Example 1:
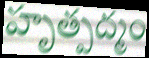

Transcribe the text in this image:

హృత్పద్మం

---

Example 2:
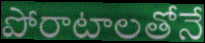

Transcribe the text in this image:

పోరాటాలతోనే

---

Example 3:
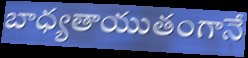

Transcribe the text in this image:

బాధ్యతాయుతంగానే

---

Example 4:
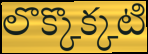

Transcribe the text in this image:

లొక్కొక్కటి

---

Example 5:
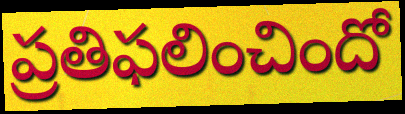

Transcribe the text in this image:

ప్రతిఫలించిందో